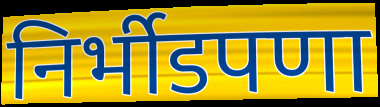
निर्भीडपणा